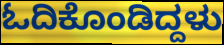
ಓದಿಕೊಂಡಿದ್ದಳು